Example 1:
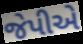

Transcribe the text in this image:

જેપીએ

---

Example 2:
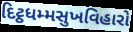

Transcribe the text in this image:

દિટ્ઠધમ્મસુખવિહારો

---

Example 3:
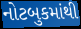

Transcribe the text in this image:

નોટબુકમાંથી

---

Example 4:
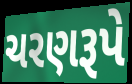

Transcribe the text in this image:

ચરણરૂપે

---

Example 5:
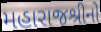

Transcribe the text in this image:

મહારાજશ્રીનો